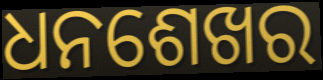
ଧନଶେଖର